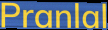
Pranlal